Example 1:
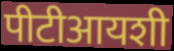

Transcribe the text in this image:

पीटीआयशी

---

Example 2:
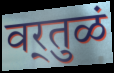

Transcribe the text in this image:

वर्तुळं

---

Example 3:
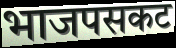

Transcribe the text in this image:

भाजपसकट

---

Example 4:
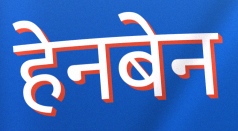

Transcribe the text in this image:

हेनबेन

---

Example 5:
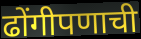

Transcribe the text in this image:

ढोंगीपणाची